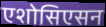
एशोसिएसन